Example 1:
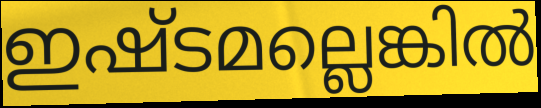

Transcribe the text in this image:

ഇഷ്ടമല്ലെങ്കിൽ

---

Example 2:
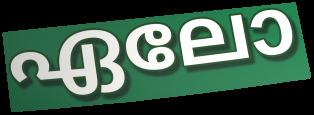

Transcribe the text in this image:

ഏലോ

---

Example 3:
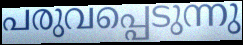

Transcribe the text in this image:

പരുവപ്പെടുന്നു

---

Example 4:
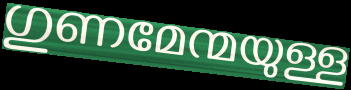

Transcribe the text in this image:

ഗുണമേന്മയുള്ള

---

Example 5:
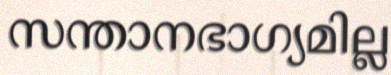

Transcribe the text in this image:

സന്താനഭാഗ്യമില്ല